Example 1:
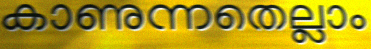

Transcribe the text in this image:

കാണുന്നതെല്ലാം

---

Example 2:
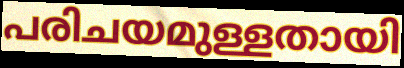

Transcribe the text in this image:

പരിചയമുള്ളതായി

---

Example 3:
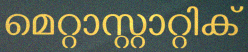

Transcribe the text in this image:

മെറ്റാസ്റ്റാറ്റിക്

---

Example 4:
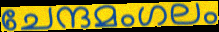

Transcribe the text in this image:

ചേന്ദമംഗലം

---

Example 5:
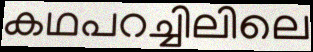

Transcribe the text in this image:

കഥപറച്ചിലിലെ